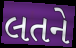
લતને